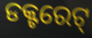
ଡକ୍ଟରେଟ୍